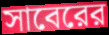
সাবেরের